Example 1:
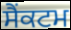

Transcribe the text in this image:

ਸੈੰਕਟਮ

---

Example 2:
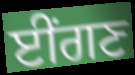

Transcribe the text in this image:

ਈਂਗਣ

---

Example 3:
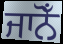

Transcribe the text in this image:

ਜਾਨੋਁ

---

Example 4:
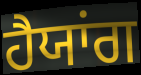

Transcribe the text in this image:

ਹੈਯਾਂਗ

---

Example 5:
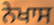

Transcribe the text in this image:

ਨੇਖਾਸ